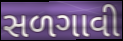
સળગાવી